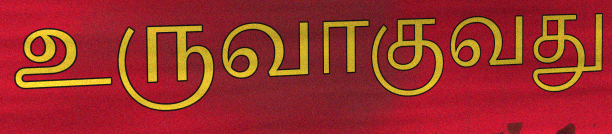
உருவாகுவது